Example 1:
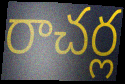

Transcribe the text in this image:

రాచర్ల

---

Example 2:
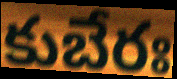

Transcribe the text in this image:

కుబేరః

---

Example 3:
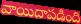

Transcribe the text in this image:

వాయిదాపడింది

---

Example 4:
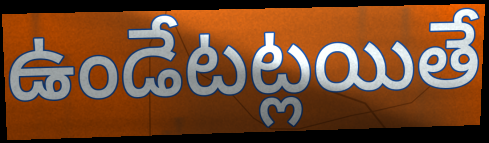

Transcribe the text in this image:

ఉండేటట్లయితే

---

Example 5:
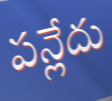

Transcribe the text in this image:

పన్లేదు